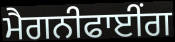
ਮੈਗਨੀਫਾਈਂਗ